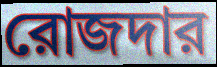
রোজদার